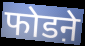
फोडऩे